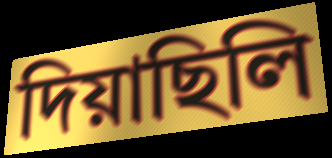
দিয়াছিলি